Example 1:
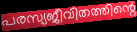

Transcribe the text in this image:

പരസ്യജീവിതത്തിന്റെ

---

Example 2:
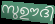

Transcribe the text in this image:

സുഊദി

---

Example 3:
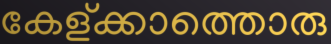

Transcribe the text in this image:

കേള്ക്കാത്തൊരു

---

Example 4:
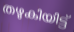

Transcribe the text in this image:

തഴുകിയിട്ട്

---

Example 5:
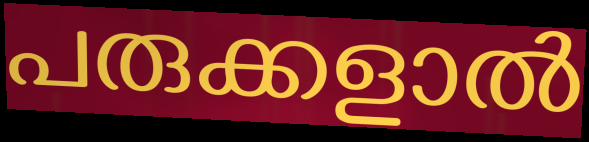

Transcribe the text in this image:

പരുക്കളാൽ